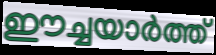
ഈച്ചയാർത്ത്